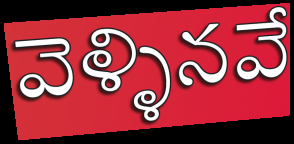
వెళ్ళినవే